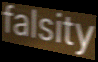
falsity